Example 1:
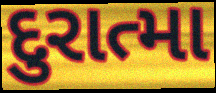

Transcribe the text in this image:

દુરાત્મા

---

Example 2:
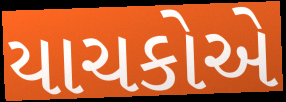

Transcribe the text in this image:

યાચકોએ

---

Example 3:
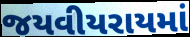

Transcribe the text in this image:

જયવીયરાયમાં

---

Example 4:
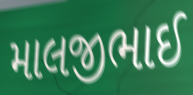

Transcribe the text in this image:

માલજીભાઈ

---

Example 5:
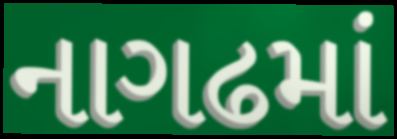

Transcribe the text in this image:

નાગઢમાં